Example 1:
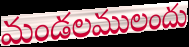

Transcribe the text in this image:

మండలములందు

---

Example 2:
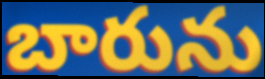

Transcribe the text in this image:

బారును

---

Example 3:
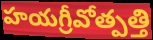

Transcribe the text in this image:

హయగ్రీవోత్పత్తి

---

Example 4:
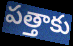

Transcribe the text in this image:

పత్తాకు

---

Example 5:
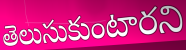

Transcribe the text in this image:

తెలుసుకుంటారని